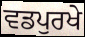
ਵਡਪੁਰਖੇ